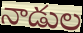
నాడుల